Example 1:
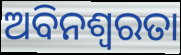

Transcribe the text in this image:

ଅବିନଶ୍ୱରତା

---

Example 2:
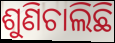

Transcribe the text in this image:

ଶୁଣିଚାଲିଛି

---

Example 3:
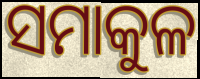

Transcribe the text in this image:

ସମାକୁଳ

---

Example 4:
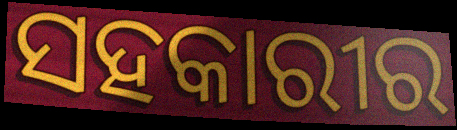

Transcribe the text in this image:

ସହକାରୀର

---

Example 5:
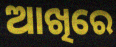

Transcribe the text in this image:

ଆଖିରେ